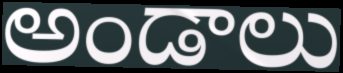
అండాలు